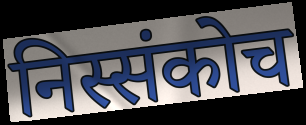
निस्संकोच